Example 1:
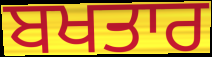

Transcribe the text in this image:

ਬਖਤਾਰ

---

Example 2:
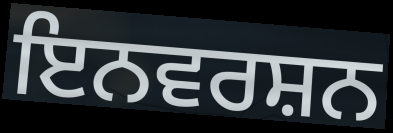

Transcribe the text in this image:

ਇਨਵਰਸ਼ਨ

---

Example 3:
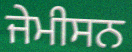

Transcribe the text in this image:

ਜੇਮੀਸਨ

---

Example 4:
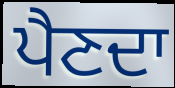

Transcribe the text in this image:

ਪੈਣਦਾ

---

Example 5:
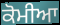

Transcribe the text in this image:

ਕੋਮੀਆ